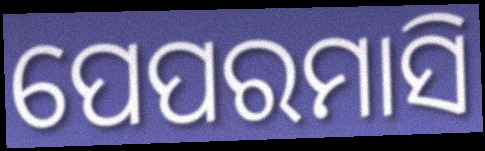
ପେପରମାସି